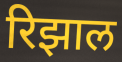
रिझाल